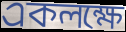
একলক্ষে